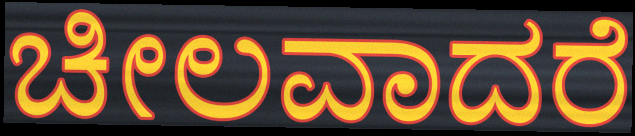
ಚೀಲವಾದರೆ